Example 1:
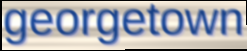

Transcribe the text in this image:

georgetown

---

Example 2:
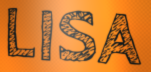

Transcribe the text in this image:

LISA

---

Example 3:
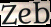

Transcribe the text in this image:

Zeb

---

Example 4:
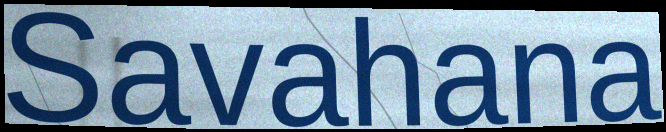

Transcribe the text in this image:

Savahana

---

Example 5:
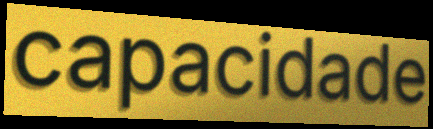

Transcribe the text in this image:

capacidade